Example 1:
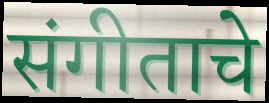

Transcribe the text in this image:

संगीताचे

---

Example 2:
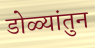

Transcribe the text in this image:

डोळ्यांतुन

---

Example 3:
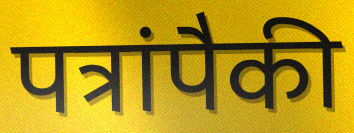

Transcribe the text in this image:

पत्रांपैकी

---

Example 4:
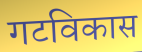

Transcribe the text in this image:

गटविकास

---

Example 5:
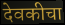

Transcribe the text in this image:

देवकीचा